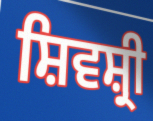
ਸ਼ਿਵਸ਼੍ਰੀ